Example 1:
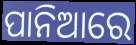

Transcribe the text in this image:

ପାନିଆରେ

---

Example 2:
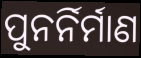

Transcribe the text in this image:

ପୁନର୍ନିର୍ମାଣ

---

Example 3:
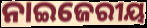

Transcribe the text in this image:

ନାଇଜେରୀୟ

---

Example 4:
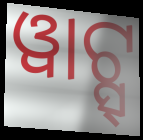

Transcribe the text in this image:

ୱାଟ୍ସ୍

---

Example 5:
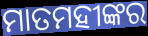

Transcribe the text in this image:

ମାତମହୀଙ୍କର